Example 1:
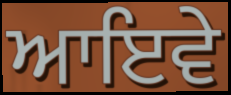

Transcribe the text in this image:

ਆਇਵੇ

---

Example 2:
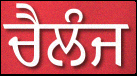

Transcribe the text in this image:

ਚੈਲੰਜ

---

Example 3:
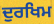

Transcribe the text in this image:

ਦੁਰਖਿਮ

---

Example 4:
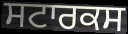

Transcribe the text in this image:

ਸਟਾਰਕਸ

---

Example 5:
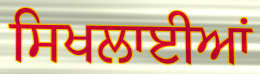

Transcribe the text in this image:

ਸਿਖਲਾਈਆਂ